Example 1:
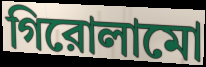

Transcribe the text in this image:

গিরোলামো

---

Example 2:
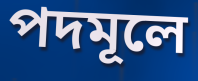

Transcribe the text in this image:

পদমূলে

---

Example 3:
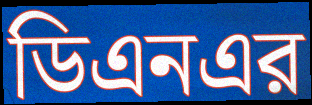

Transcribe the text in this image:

ডিএনএর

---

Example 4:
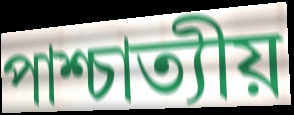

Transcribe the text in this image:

পাশ্চাত্যীয়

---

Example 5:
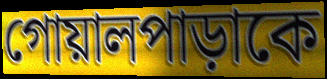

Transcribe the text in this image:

গোয়ালপাড়াকে